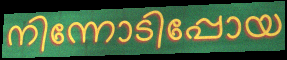
നിന്നോടിപ്പോയ